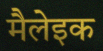
मैलेइक